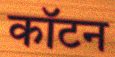
कॉटन